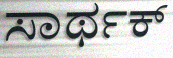
ಸಾರ್ಥಕ್